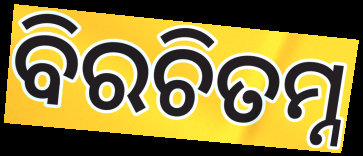
ବିରଚିତମ୍ନ